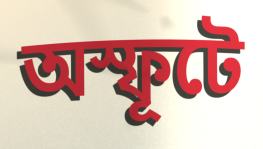
অস্ফূটে